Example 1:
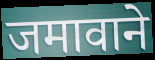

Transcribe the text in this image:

जमावाने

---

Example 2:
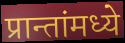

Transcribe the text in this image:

प्रान्तांमध्ये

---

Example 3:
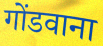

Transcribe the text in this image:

गोंडवाना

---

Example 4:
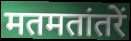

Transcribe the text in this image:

मतमतांतरें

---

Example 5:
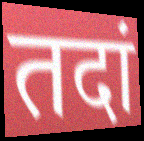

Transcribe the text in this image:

तदां